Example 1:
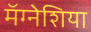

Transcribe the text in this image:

मॅग्‍नेशिया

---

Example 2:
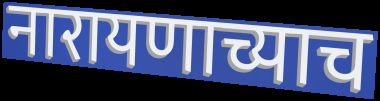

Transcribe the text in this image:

नारायणाच्याच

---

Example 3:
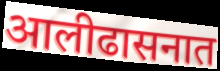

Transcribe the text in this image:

आलीढासनात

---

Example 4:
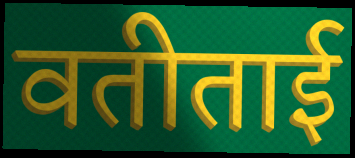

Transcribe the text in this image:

वतीताई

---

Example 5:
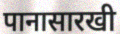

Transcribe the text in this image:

पानासारखी